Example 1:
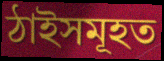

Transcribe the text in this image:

ঠাইসমূহত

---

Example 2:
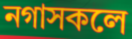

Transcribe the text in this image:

নগাসকলে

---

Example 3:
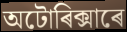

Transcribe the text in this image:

অটোৰিক্সাৰে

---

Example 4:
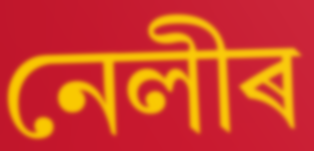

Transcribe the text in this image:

নেলীৰ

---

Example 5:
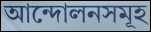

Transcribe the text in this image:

আন্দোলনসমূহ